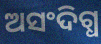
ଅସଂଦିଗ୍ଧ